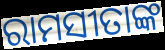
ରାମସୀତାଙ୍କ